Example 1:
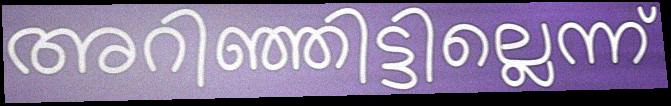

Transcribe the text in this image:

അറിഞ്ഞിട്ടില്ലെന്ന്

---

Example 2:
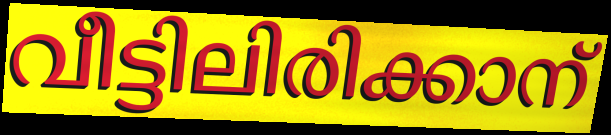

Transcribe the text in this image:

വീട്ടിലിരിക്കാന്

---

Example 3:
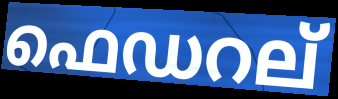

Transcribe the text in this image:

ഫെഡറല്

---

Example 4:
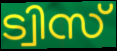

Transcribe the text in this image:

ട്വിസ്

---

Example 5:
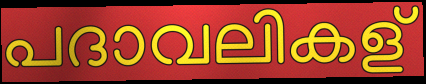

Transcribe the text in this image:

പദാവലികള്